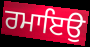
ਰਮਾਇਉ